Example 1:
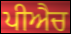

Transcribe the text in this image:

ਪੀਐਚ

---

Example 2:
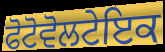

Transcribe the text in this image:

ਫੋਟੋਵੋਲਟੇਇਕ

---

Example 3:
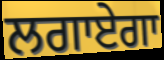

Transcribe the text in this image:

ਲਗਾਏਗਾ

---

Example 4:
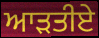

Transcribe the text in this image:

ਆੜਤੀਏ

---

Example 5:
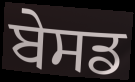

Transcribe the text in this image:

ਬੇਸਡ